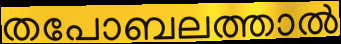
തപോബലത്താൽ